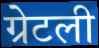
ग्रेटली